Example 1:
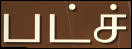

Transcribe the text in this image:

பட்ச்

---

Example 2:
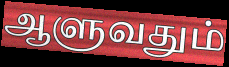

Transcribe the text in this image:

ஆளுவதும்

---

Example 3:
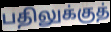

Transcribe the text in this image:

பதிலுக்குத்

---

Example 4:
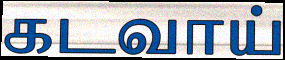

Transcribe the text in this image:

கடவாய்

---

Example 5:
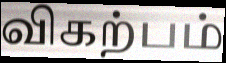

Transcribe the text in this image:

விகற்பம்